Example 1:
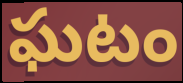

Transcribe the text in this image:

ఘటం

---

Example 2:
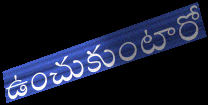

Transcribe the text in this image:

ఉంచుకుంటారో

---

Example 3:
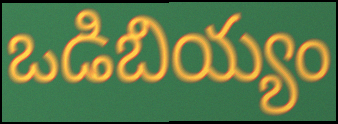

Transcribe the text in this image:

ఒడిబియ్యం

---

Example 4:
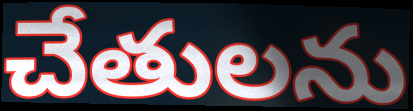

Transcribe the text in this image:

చేతులను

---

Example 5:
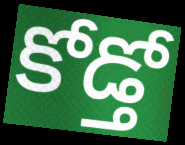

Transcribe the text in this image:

కోడ్తో